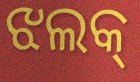
ଝଲକ୍